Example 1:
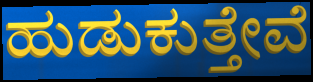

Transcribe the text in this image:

ಹುಡುಕುತ್ತೇವೆ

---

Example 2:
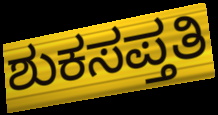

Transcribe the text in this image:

ಶುಕಸಪ್ತತಿ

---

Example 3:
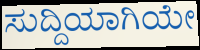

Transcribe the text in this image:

ಸುದ್ದಿಯಾಗಿಯೇ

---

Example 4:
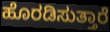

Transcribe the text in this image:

ಹೊರಡಿಸುತ್ತಾರೆ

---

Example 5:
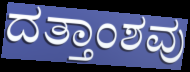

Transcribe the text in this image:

ದತ್ತಾಂಶವು